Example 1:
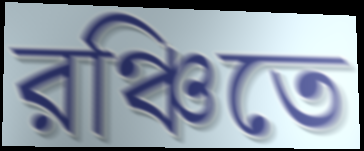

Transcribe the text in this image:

রঞ্চিতে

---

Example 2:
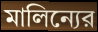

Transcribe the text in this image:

মালিন্যের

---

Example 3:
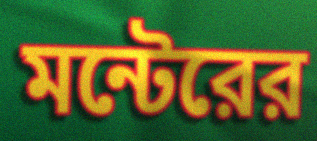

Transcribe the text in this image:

মন্টেরের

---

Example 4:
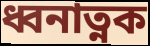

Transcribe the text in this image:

ধ্বনাত্নক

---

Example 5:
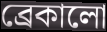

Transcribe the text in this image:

ব্রেকালো